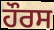
ਹੌਰਸ